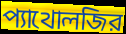
প্যাথোলজির